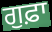
ਗੁਫ਼ਾ